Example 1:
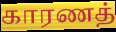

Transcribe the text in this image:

காரணத்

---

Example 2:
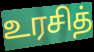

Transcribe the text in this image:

உரசித்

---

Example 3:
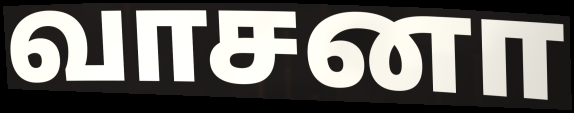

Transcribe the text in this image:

வாசனா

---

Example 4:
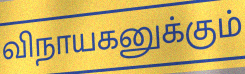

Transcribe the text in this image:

விநாயகனுக்கும்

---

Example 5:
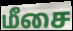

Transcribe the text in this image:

மீசை